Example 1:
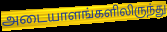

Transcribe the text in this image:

அடையாளங்களிலிருந்து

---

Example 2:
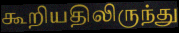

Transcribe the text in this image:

கூறியதிலிருந்து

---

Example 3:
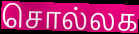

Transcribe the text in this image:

சொல்லக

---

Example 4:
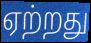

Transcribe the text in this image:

ஏற்றது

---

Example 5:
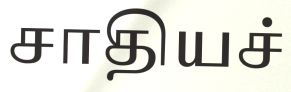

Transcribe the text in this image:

சாதியச்